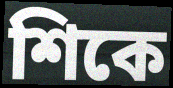
শিকে